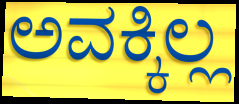
ಅವಕ್ಕಿಲ್ಲ